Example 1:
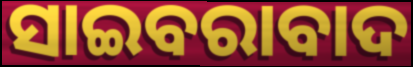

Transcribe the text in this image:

ସାଇବରାବାଦ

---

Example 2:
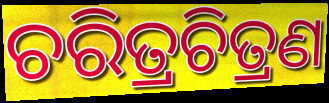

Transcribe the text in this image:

ଚରିତ୍ରଚିତ୍ରଣ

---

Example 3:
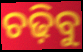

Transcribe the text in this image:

ଚଢ଼ିବୁ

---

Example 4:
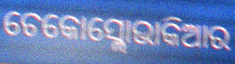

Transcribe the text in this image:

ଚେକୋସ୍ଲୋଭାକିଆର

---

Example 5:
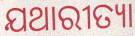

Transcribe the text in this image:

ଯଥାରୀତ୍ୟା